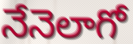
నేనెలాగో